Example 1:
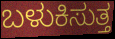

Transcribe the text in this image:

ಬಳುಕಿಸುತ್ತ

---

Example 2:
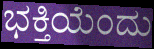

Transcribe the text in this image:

ಭಕ್ತಿಯೆಂದು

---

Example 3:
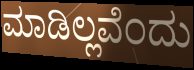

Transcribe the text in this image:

ಮಾಡಿಲ್ಲವೆಂದು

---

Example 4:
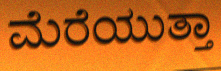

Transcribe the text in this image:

ಮೆರೆಯುತ್ತಾ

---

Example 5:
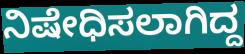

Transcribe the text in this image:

ನಿಷೇಧಿಸಲಾಗಿದ್ದ